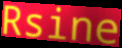
Rsine